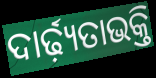
ଦାର୍ଢ଼୍ୟତାଭକ୍ତି